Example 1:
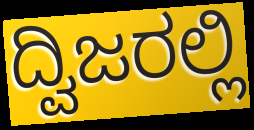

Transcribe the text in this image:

ದ್ವಿಜರಲ್ಲಿ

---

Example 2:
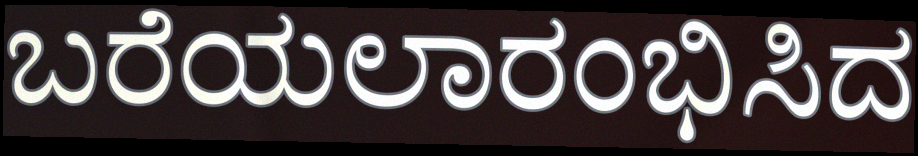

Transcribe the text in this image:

ಬರೆಯಲಾರಂಭಿಸಿದ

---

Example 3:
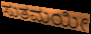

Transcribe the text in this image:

ಸುತಮಯೀ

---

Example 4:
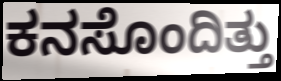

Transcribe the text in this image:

ಕನಸೊಂದಿತ್ತು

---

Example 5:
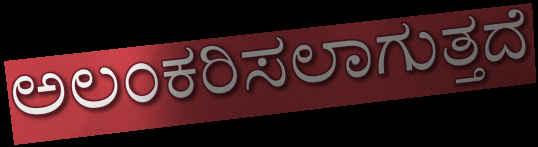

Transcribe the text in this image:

ಅಲಂಕರಿಸಲಾಗುತ್ತದೆ